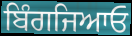
ਬਿੰਗਜਿਆਓ